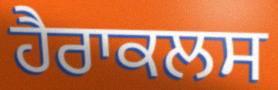
ਹੈਰਾਕਲਸ